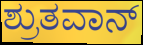
ಶ್ರುತವಾನ್